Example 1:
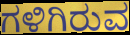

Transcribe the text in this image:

ಗಳಿಗಿರುವ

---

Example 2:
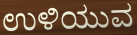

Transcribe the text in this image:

ಉಳಿಯುವ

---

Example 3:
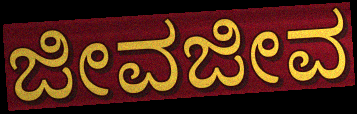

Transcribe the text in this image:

ಜೀವಜೀವ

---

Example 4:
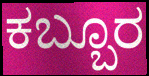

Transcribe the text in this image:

ಕಬ್ಬೂರ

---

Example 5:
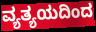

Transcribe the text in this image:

ವ್ಯತ್ಯಯದಿಂದ